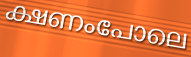
ക്ഷണംപോലെ